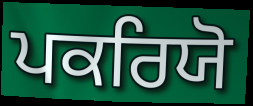
ਪਕਰਿਯੋ